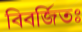
বিবর্জিতঃ